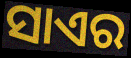
ସାଏର